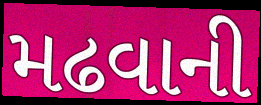
મઢવાની